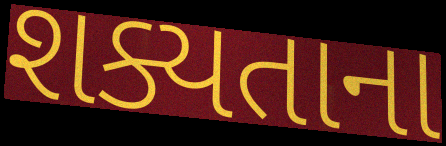
શક્યતાના